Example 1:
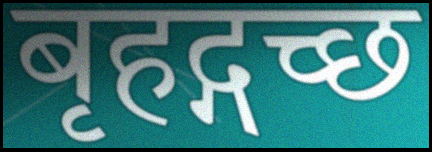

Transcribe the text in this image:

बृहद्गच्छ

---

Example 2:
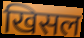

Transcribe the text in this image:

खिसल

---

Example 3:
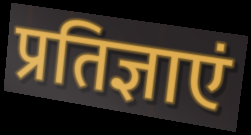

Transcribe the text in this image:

प्रतिज्ञाएं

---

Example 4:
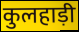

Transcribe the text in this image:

कुलहाड़ी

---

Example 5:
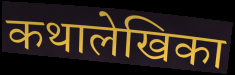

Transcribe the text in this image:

कथालेखिका